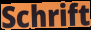
Schrift